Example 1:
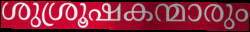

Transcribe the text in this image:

ശുശ്രൂഷകന്മാരും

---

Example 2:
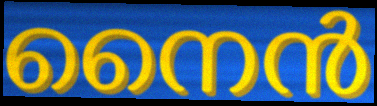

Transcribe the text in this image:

നൈൻ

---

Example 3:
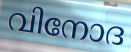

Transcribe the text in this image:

വിനോദ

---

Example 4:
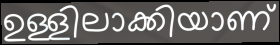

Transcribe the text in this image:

ഉള്ളിലാക്കിയാണ്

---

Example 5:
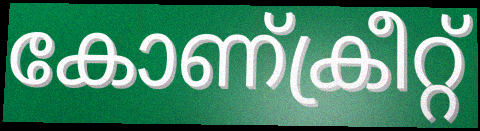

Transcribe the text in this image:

കോണ്ക്രീറ്റ്